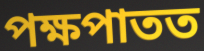
পক্ষপাতত